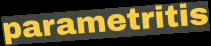
parametritis